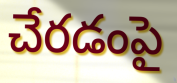
చేరడంపై